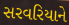
સરવરિયાને